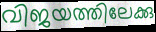
വിജയത്തിലേക്കു